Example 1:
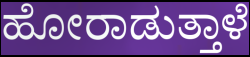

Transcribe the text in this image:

ಹೋರಾಡುತ್ತಾಳೆ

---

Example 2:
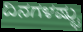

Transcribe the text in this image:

ದಿನಗಳಷ್ಟು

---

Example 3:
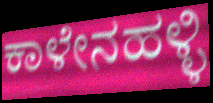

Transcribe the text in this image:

ಕಾಳೇನಹಳ್ಳಿ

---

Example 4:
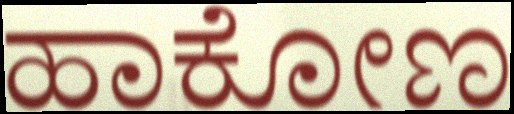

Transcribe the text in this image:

ಹಾಕೋಣ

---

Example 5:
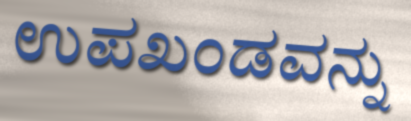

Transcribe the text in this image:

ಉಪಖಂಡವನ್ನು